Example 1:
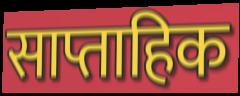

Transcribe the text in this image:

साप्ताहिक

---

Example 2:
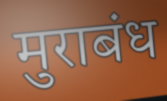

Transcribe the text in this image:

मुराबंध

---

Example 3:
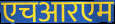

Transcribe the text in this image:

एचआरएम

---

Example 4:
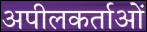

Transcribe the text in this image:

अपीलकर्ताओं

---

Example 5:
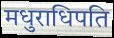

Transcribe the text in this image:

मधुराधिपति